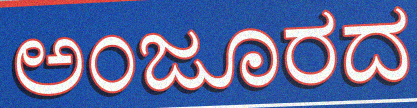
ಅಂಜೂರದ